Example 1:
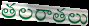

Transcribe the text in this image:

తలరాతలు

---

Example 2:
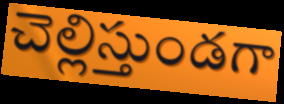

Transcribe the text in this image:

చెల్లిస్తుండగా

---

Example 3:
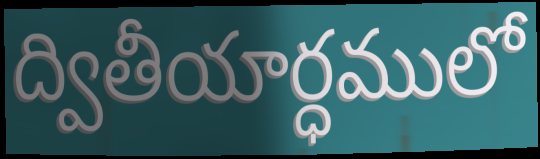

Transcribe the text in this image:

ద్వితీయార్ధములో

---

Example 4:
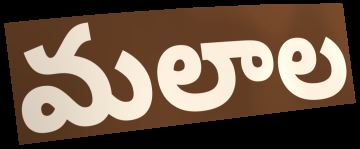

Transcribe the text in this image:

మలాల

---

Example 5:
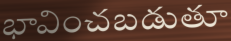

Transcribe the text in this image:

భావించబడుతూ